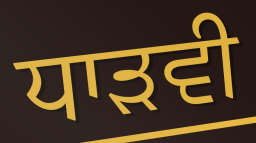
ਧਾੜਵੀ